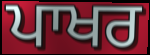
ਪਾਖਰ